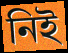
নিই